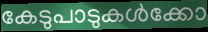
കേടുപാടുകൾക്കോ